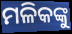
ମଳିକଙ୍କୁ